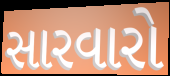
સારવારો